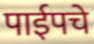
पाईपचे